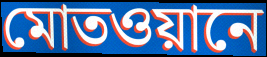
মোতওয়ানে